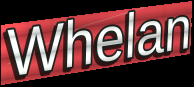
Whelan